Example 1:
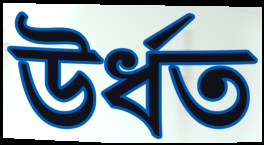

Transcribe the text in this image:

উৰ্ধত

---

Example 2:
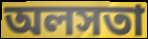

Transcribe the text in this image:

অলসতা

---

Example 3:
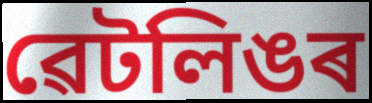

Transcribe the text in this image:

ৱেটলিঙৰ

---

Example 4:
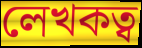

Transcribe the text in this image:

লেখকত্ব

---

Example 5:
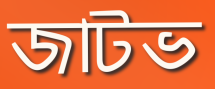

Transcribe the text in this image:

জাটভ